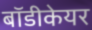
बॉडीकेयर